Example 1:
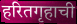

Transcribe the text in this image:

हरितगृहाची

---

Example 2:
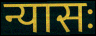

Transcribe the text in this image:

न्यासः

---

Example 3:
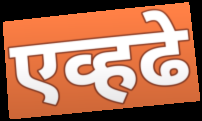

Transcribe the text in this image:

एव्हढे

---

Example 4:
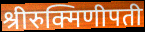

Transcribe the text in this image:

श्रीरुक्मिणीपती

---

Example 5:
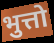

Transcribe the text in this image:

भुत्तो